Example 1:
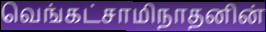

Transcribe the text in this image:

வெங்கட்சாமிநாதனின்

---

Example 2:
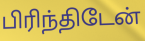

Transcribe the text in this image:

பிரிந்திடேன்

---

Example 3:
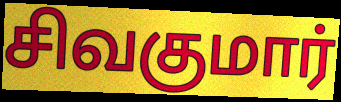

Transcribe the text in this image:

சிவகுமார்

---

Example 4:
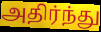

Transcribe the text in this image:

அதிர்ந்து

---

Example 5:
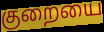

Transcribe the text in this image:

குறையை